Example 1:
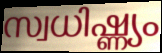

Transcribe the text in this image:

സ്വധിഷ്ണ്യം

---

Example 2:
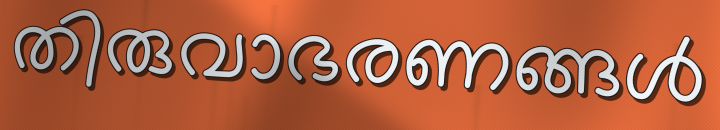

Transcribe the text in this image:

തിരുവാഭരണങ്ങൾ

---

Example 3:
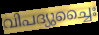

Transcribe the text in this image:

വിപദ്യുച്ചൈഃ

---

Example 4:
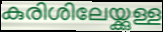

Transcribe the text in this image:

കുരിശിലേയ്ക്കുള്ള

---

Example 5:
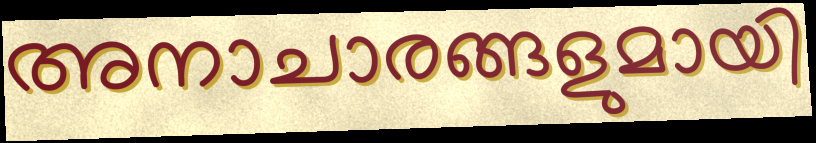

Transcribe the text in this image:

അനാചാരങ്ങളുമായി